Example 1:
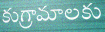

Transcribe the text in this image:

కుగ్రామాలకు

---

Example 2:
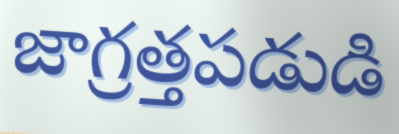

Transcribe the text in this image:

జాగ్రత్తపడుడి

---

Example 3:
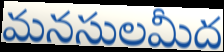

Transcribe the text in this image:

మనసులమీద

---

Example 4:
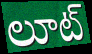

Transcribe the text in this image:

లూట్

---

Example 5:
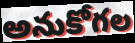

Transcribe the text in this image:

అనుకోగల